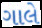
ગાલે